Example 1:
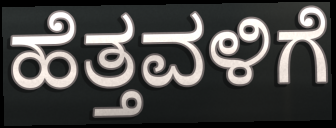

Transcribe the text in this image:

ಹೆತ್ತವಳಿಗೆ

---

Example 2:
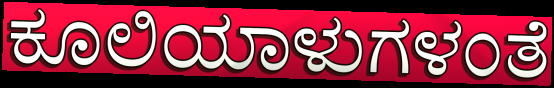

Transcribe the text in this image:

ಕೂಲಿಯಾಳುಗಳಂತೆ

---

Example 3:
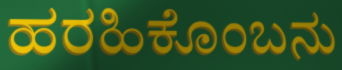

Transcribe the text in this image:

ಹರಹಿಕೊಂಬನು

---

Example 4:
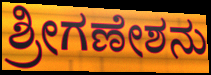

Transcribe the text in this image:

ಶ್ರೀಗಣೇಶನು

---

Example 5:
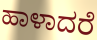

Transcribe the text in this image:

ಹಾಳಾದರೆ